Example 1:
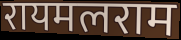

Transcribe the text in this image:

रायमलराम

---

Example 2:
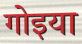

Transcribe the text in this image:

गोइया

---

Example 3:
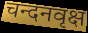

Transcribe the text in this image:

चन्दनवृक्ष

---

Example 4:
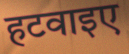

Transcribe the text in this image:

हटवाइए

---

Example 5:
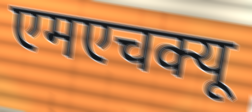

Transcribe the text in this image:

एमएचक्यू